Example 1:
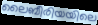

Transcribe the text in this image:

ലൈബീരിയയിലെ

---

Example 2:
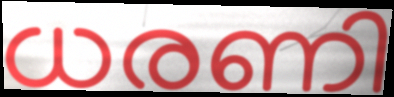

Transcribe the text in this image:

ധരണി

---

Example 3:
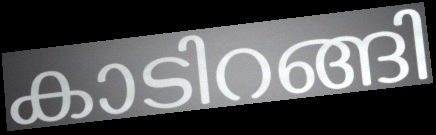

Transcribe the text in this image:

കാടിറങ്ങി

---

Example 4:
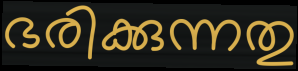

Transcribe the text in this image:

ഭരിക്കുന്നതു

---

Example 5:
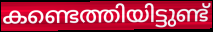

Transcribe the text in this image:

കണ്ടെത്തിയിട്ടുണ്ട്